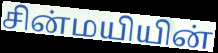
சின்மயியின்